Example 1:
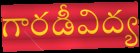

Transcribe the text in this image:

గారడీవిద్య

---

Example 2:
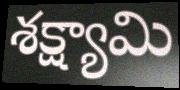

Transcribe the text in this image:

శక్ష్యామి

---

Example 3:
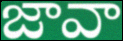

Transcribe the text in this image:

జావా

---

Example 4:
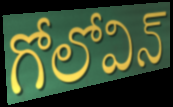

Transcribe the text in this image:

గోలోవిన్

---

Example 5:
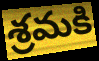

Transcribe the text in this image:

శ్రమకి